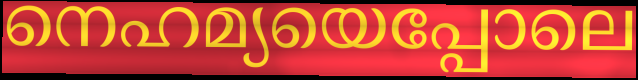
നെഹമ്യയെപ്പോലെ